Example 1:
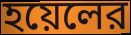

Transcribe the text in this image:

হয়েলের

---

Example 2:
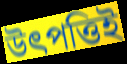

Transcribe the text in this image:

উৎপত্তিই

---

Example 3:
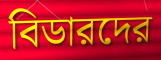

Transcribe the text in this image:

বিডারদের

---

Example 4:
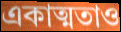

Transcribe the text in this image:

একাত্মতাও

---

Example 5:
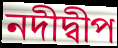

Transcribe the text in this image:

নদীদ্বীপ